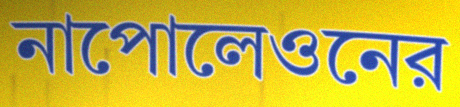
নাপোলেওনের